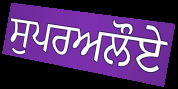
ਸੁਪਰਅਲੌਏ